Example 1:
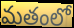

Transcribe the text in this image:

మతంలో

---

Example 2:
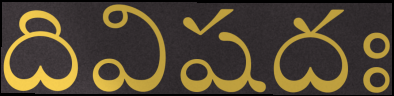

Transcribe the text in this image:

దివిషదః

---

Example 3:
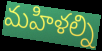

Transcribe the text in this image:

మహిళల్ని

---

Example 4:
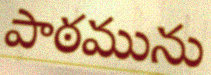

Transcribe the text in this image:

పాఠమును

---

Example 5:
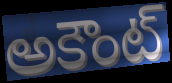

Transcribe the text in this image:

అకౌంట్